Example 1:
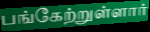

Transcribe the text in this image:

பங்கேற்றுள்ளார்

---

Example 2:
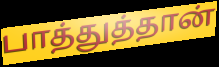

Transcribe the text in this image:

பாத்துத்தான்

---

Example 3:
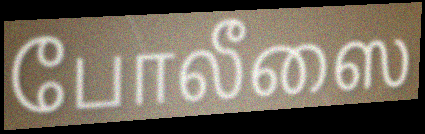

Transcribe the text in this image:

போலீஸை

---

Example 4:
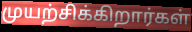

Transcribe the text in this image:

முயற்சிக்கிறார்கள்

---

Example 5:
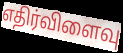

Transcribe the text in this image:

எதிர்விளைவு